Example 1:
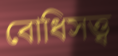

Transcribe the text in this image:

বোধিসত্ত্ব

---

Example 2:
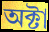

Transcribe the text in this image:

অক্টা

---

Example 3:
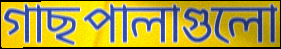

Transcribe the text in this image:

গাছপালাগুলো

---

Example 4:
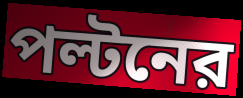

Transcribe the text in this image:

পল্টনের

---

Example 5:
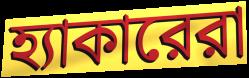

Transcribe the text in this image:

হ্যাকারেরা